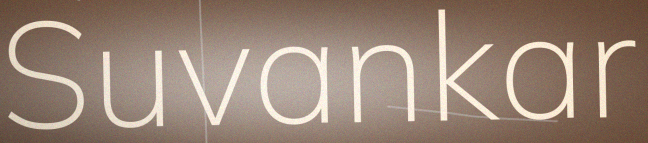
Suvankar